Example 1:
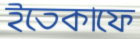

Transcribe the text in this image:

ইতেকাফে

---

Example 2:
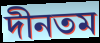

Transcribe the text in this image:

দীনতম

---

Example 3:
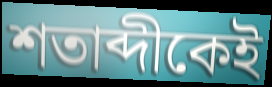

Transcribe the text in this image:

শতাব্দীকেই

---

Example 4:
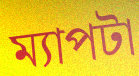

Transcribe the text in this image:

ম্যাপটা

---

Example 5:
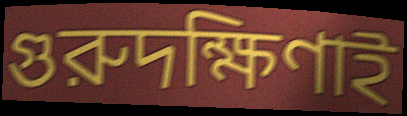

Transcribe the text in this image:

গুরুদক্ষিণাই